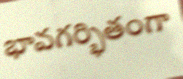
భావగర్భితంగా